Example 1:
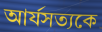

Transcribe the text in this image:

আর্যসত্যকে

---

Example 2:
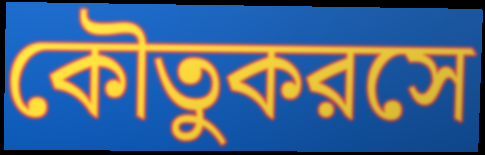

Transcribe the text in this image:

কৌতুকরসে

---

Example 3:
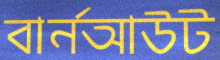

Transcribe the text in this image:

বার্নআউট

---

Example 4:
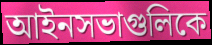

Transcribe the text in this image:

আইনসভাগুলিকে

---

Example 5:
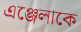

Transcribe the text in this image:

এঞ্জেলাকে